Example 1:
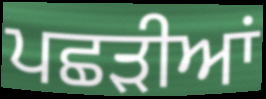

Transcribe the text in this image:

ਪਛੜੀਆਂ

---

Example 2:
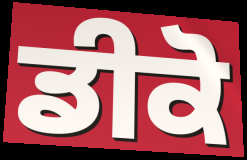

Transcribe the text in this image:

ਡੀਕੋ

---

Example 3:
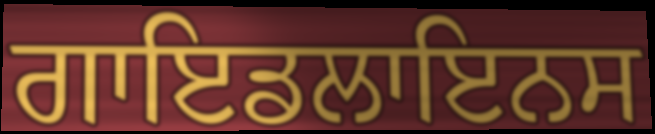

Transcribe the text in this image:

ਗਾਇਡਲਾਇਨਸ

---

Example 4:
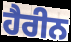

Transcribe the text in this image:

ਹੈਰੀਨ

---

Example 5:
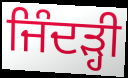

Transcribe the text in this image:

ਜਿੰਦੜ੍ਹੀ